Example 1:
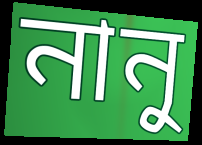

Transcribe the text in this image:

নানু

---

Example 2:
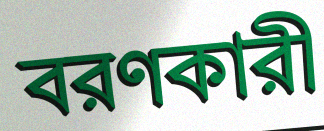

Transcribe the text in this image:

বরণকারী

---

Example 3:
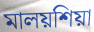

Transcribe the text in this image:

মালয়শিয়া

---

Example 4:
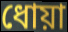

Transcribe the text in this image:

ধোয়া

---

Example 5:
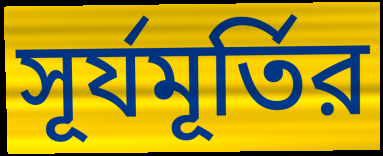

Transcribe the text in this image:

সূর্যমূর্তির